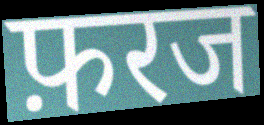
फ़रज